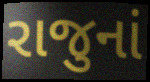
રાજુનાં